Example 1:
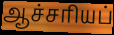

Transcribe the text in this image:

ஆச்சரியப்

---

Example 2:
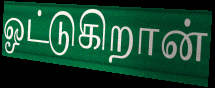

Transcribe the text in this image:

ஓட்டுகிறான்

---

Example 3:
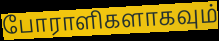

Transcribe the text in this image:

போராளிகளாகவும்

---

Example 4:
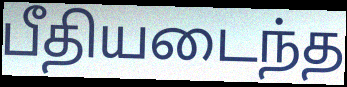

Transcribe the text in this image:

பீதியடைந்த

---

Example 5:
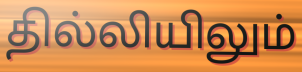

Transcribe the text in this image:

தில்லியிலும்